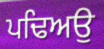
ਪਢਿਅਉ